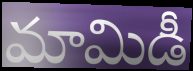
మామిడీ